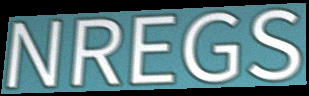
NREGS